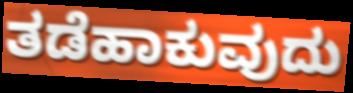
ತಡೆಹಾಕುವುದು